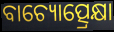
ବାଚ୍ୟୋତ୍ପ୍ରେକ୍ଷା